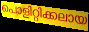
പൊളിറ്റിക്കലായ